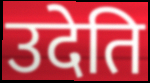
उदेति